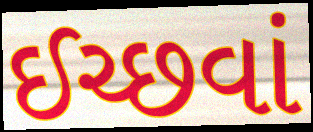
ઈચ્છવાં